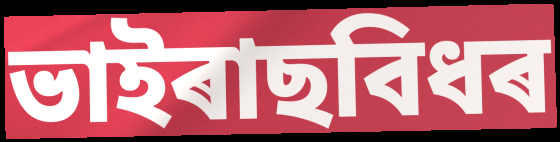
ভাইৰাছবিধৰ